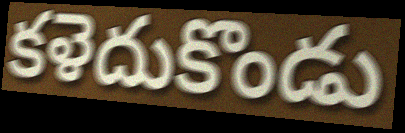
కళెదుకొండు